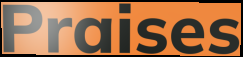
Praises